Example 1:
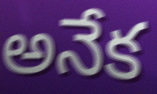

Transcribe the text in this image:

అనేక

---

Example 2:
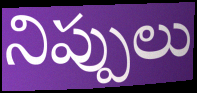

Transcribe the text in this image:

నిప్పులు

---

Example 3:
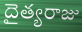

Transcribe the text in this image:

దైత్యరాజు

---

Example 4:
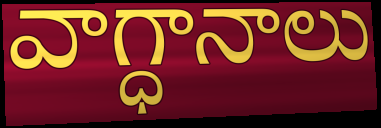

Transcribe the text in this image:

వాగ్ధానాలు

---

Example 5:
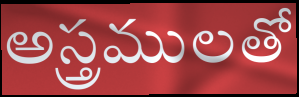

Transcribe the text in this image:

అస్త్రములతో